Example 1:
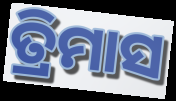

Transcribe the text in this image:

ତ୍ରିମାସ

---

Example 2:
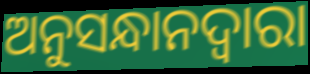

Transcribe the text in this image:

ଅନୁସନ୍ଧାନଦ୍ୱାରା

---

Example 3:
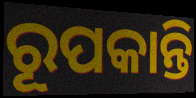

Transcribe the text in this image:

ରୂପକାନ୍ତି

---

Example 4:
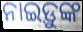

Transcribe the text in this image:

ନାଇଡ଼ୁଙ୍କ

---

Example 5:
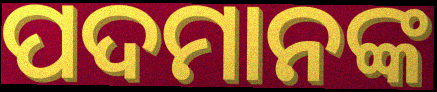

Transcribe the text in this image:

ପଦମାନଙ୍କ